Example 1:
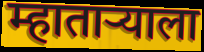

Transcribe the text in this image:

म्हाताऱ्याला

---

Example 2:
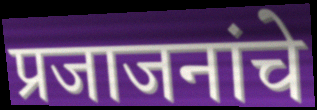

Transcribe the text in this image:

प्रजाजनांचे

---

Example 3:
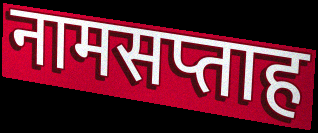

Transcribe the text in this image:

नामसप्ताह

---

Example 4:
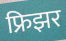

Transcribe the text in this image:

फ्रिझर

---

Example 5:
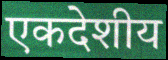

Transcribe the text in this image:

एकदेशीय